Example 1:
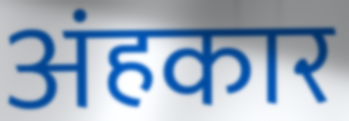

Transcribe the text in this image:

अंहकार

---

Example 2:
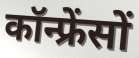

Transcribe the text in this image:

कॉन्फ्रेंसों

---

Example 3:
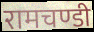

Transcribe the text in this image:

रामचण्डी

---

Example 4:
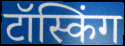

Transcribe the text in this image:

टॉस्किंग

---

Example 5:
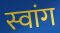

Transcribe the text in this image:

स्‍वांग